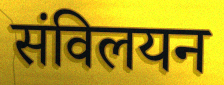
संविलयन